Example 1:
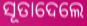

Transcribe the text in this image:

ସୂତାଦେଲେ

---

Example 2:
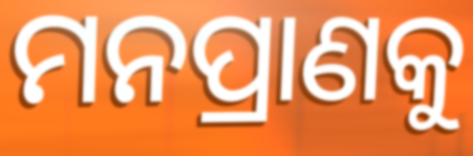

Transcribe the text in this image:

ମନପ୍ରାଣକୁ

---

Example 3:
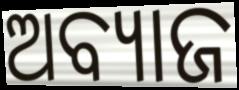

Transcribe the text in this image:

ଅବ୍ଯାଜ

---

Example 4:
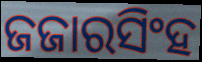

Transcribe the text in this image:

ଜଜାରସିଂହ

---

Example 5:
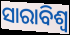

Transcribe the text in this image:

ସାରାବିଶ୍ବ